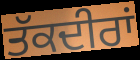
ਤੱਕਦੀਰਾਂ